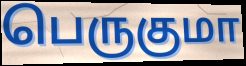
பெருகுமா